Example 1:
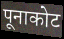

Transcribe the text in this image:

पूनाकोट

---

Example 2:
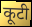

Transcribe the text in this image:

कूटी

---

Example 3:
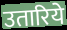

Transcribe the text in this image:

उतारिये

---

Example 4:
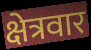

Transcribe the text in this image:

क्षेत्रवार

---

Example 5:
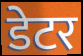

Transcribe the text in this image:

डेटर